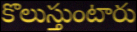
కొలుస్తుంటారు